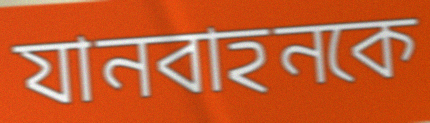
যানবাহনকে